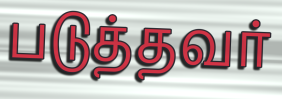
படுத்தவர்